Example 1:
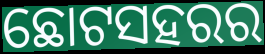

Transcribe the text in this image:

ଛୋଟସହରର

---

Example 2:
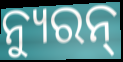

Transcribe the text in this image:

ନ୍ୟୁରନ୍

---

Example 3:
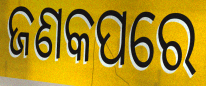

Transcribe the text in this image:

ଜଣକପରେ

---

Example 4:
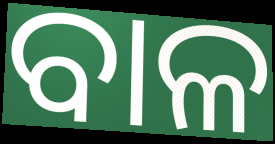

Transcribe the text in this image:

ବାଳ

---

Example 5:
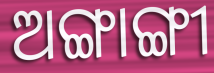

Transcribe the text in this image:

ଅଙ୍ଗାଙ୍ଗୀ